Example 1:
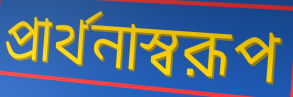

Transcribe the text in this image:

প্রার্থনাস্বরূপ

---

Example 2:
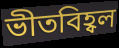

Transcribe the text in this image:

ভীতবিহ্বল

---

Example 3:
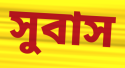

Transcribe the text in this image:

সুবাস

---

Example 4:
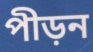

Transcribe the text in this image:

পীড়ন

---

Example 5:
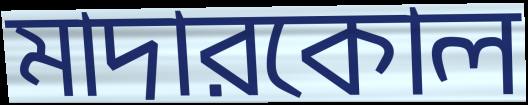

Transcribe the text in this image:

মাদারকোল